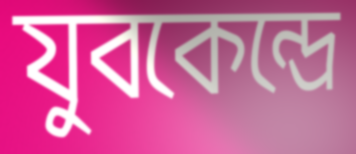
যুবকেন্দ্রে